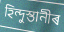
হিন্দুস্তানীৰ